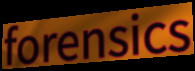
forensics